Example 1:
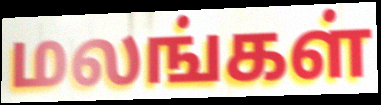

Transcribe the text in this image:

மலங்கள்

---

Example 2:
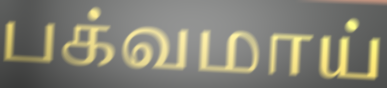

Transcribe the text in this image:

பக்வமாய்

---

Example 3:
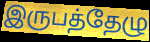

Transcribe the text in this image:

இருபத்தேழு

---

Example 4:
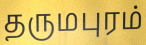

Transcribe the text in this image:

தருமபுரம்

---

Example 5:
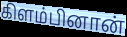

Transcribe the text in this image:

கிளம்பினான்